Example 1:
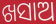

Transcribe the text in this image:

ଖସାଅ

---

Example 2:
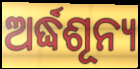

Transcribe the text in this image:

ଅର୍ଦ୍ଧଶୂନ୍ୟ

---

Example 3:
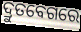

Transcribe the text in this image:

ଦ୍ରୁତବେଗରେ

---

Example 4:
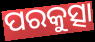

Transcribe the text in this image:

ପରକୁତ୍ସା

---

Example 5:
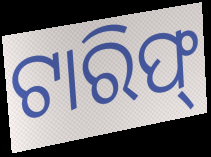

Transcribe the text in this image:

ଟାରିଫ୍